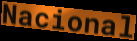
Nacional